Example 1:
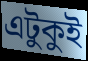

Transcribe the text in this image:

এটুকুই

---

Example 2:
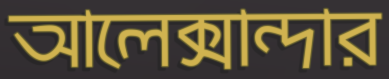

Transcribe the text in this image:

আলেক্সান্দার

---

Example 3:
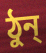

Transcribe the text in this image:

ঠুন্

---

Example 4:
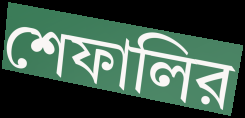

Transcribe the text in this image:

শেফালির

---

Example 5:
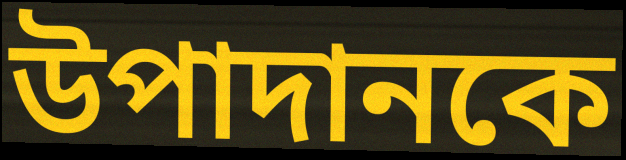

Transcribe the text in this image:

উপাদানকে